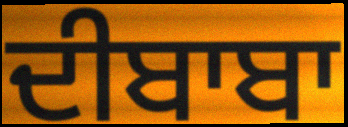
ਦੀਬਾਬਾ